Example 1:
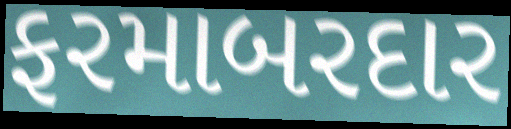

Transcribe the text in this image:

ફરમાબરદાર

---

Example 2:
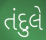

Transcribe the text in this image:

તંદુલે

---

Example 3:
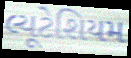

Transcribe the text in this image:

લ્યૂટેશિયમ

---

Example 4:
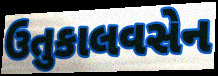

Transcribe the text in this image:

ઉતુકાલવસેન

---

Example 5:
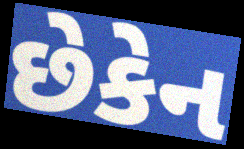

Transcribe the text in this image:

છેકેન